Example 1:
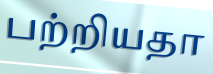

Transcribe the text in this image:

பற்றியதா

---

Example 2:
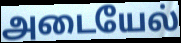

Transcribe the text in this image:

அடையேல்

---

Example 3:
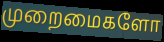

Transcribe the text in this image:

முறைமைகளோ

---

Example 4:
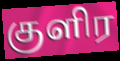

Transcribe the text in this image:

குளிர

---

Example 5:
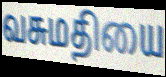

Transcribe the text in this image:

வசுமதியை